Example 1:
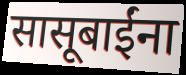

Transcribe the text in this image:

सासूबाईंना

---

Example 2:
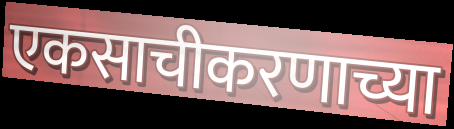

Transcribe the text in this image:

एकसाचीकरणाच्या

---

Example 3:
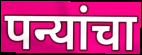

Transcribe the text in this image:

पन्यांचा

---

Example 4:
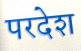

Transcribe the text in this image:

परदेश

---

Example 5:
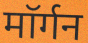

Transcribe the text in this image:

मॉर्गन